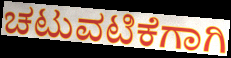
ಚಟುವಟಿಕೆಗಾಗಿ